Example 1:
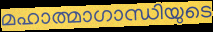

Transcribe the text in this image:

മഹാത്മാഗാന്ധിയുടെ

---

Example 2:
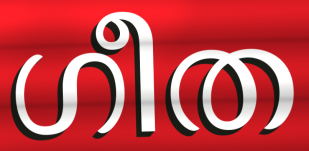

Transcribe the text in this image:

ഗീത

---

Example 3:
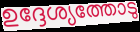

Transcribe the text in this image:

ഉദ്ദേശ്യത്തോടു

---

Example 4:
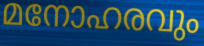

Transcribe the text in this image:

മനോഹരവും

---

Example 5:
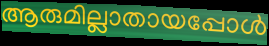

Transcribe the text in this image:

ആരുമില്ലാതായപ്പോൾ